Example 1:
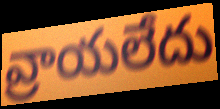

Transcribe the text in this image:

వ్రాయలేదు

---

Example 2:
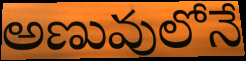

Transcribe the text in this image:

అణువులోనే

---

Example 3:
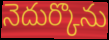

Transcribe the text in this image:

నెదుర్కొను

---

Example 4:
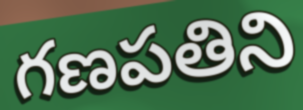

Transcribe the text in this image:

గణపతిని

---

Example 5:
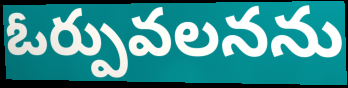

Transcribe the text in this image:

ఓర్పువలనను